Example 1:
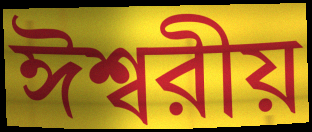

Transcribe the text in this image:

ঈশ্বরীয়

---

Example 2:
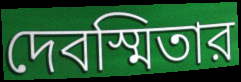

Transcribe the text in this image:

দেবস্মিতার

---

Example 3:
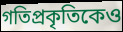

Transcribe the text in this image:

গতিপ্রকৃতিকেও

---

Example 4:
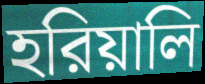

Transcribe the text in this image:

হরিয়ালি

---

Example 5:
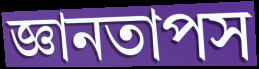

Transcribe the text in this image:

জ্ঞানতাপস